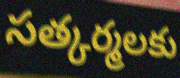
సత్కర్మలకు